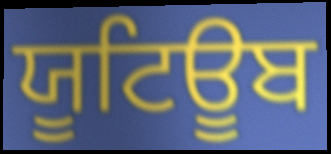
ਯੂਟਿਊਬ